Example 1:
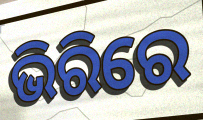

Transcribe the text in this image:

ଭିରିରେ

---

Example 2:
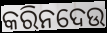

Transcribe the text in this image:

କରିନଦେଉ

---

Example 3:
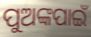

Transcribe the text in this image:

ପୁଅଙ୍କପାଇଁ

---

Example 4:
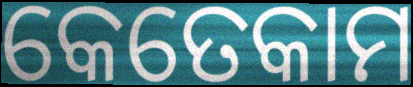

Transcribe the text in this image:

କେତେକାମ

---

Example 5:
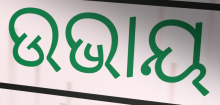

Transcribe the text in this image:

ଉଭାୟ